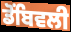
ਡੋਂਬਿਵਲੀ